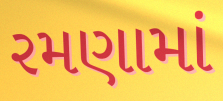
રમણામાં